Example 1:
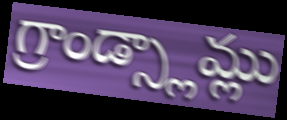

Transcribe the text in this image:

గ్రాండ్స్లామ్లు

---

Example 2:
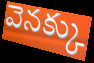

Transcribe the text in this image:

వెనక్కు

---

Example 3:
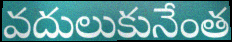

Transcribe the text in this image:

వదులుకునేంత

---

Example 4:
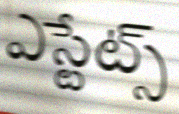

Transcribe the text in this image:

ఎస్టేట్స్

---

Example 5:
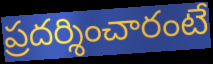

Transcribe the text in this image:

ప్రదర్శించారంటే